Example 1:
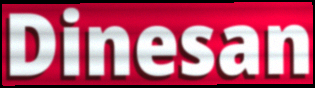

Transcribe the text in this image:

Dinesan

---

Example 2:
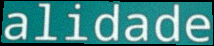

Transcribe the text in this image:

alidade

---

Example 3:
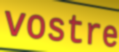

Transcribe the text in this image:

vostre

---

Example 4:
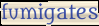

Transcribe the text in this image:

fumigates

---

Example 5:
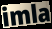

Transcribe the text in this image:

imla